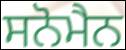
ਸਨੋਮੈਨ